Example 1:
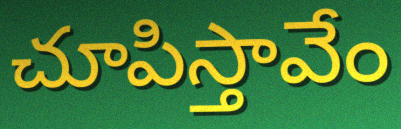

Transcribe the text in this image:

చూపిస్తావేం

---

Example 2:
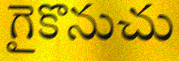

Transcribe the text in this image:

గైకొనుచు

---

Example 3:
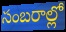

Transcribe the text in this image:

సంబరాల్లో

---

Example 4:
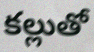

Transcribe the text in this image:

కల్లుతో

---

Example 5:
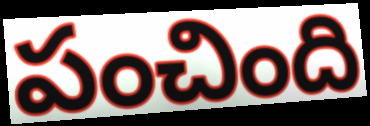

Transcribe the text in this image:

పంచింది